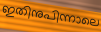
ഇതിനുപിന്നാലെ